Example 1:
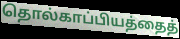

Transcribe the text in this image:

தொல்காப்பியத்தைத்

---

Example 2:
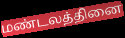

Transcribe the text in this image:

மண்டலத்தினை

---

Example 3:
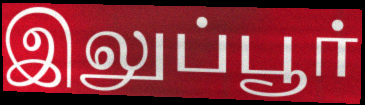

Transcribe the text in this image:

இலுப்பூர்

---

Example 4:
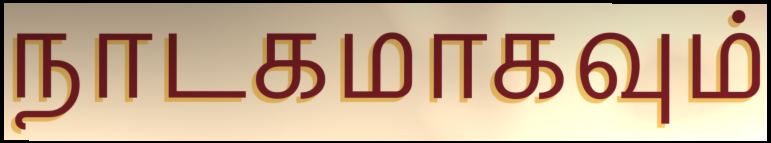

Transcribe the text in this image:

நாடகமாகவும்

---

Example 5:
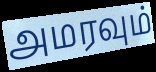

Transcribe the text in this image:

அமரவும்